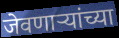
जेवणाऱ्यांच्या